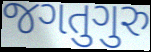
જગતુગુરુ